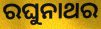
ରଘୁନାଥର